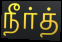
நீர்த்